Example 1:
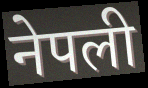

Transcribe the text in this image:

नेपली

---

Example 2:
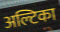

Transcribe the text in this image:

अल्टिका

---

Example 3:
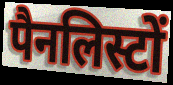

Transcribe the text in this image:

पैनलिस्टों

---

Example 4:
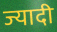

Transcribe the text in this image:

ज्यादी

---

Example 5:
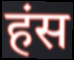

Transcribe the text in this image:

हंस